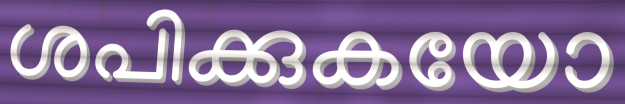
ശപിക്കുകയോ